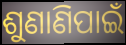
ଶୁଣାଣିପାଇଁ